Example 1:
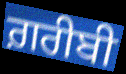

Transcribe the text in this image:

ਗ਼ਰੀਬੀ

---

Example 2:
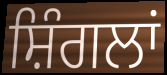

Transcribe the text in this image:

ਸ਼ਿੰਗਲਾਂ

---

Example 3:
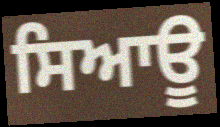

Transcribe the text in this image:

ਸਿਆਊ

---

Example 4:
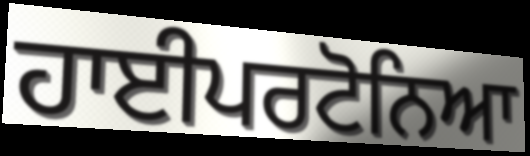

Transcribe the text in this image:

ਹਾਈਪਰਟੋਨਿਆ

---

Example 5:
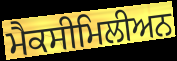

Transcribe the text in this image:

ਮੈਕਸੀਮਿਲੀਅਨ